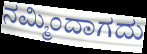
ನಮ್ಮಿಂದಾಗದು